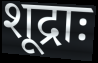
शूद्राः